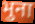
भुना